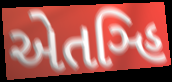
એતઞ્હિ